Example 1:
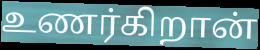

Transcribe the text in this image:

உணர்கிறான்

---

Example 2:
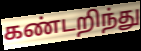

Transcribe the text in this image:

கண்டறிந்து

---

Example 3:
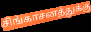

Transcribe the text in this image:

சிங்காசனத்துக்கு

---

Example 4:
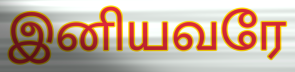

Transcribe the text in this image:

இனியவரே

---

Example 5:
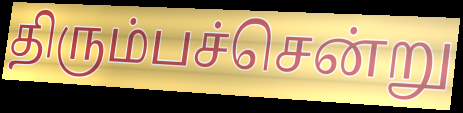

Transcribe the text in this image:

திரும்பச்சென்று